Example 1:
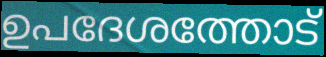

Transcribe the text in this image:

ഉപദേശത്തോട്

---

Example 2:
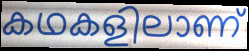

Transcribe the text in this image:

കഥകളിലാണ്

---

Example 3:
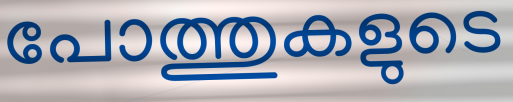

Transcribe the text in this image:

പോത്തുകളുടെ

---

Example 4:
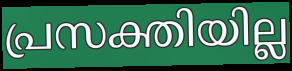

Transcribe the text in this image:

പ്രസക്തിയില്ല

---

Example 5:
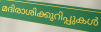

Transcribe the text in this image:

മദിരാശിക്കുറിപ്പുകൾ